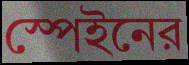
স্পেইনের